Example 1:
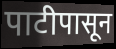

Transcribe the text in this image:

पाटीपासून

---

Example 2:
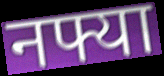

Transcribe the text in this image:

नफ्या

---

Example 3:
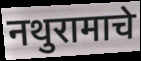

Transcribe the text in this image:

नथुरामाचे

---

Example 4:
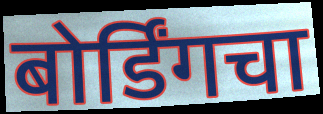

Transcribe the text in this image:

बोर्डिंगचा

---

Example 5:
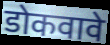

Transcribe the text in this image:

डोकवावे